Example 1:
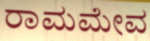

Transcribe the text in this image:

ರಾಮಮೇವ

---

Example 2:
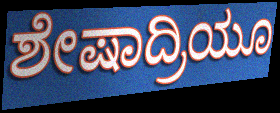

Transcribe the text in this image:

ಶೇಷಾದ್ರಿಯೂ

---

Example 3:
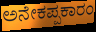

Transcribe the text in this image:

ಅನೇಕಪ್ಪಕಾರಂ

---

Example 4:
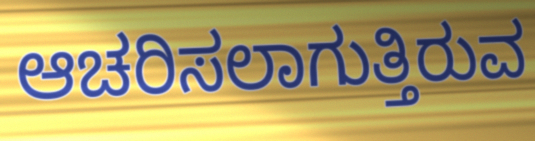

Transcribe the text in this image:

ಆಚರಿಸಲಾಗುತ್ತಿರುವ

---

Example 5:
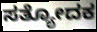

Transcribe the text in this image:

ಸತ್ಯೋದಕ